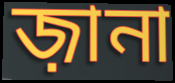
জ়ানা